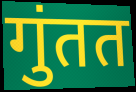
गुंतत